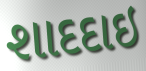
શાદદાઇ